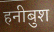
हनीबुश